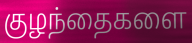
குழந்தைகளை